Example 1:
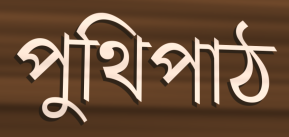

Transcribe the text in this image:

পুথিপাঠ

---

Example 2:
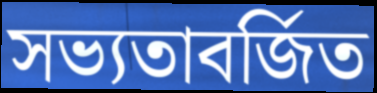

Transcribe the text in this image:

সভ্যতাবর্জিত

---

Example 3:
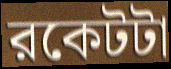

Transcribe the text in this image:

রকেটটা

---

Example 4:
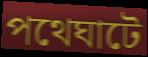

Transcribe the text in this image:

পথেঘাটে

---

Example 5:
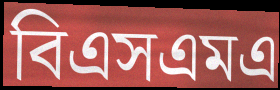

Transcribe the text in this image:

বিএসএমএ